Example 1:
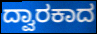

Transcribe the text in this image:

ದ್ವಾರಕಾದ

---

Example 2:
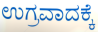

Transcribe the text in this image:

ಉಗ್ರವಾದಕ್ಕೆ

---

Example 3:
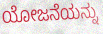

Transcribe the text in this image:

ಯೋಜನೆಯನ್ನು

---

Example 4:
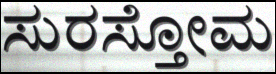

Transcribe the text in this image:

ಸುರಸ್ತೋಮ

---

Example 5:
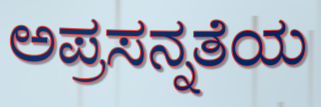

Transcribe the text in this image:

ಅಪ್ರಸನ್ನತೆಯ